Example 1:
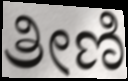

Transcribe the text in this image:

ತೀಣಿ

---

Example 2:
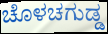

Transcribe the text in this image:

ಚೊಳಚಗುಡ್ಡ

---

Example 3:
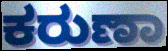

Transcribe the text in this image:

ಕರುಣಾ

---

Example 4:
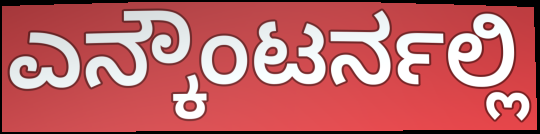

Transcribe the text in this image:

ಎನ್ಕೌಂಟರ್ನಲ್ಲಿ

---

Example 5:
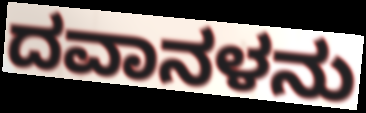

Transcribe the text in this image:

ದವಾನಳನು